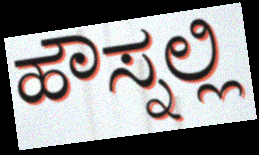
ಹೌಸ್ನಲ್ಲಿ